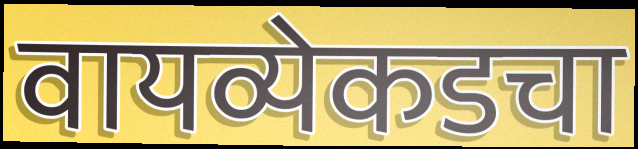
वायव्येकडचा